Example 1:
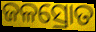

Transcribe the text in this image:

ଜଳସ୍ରୋତ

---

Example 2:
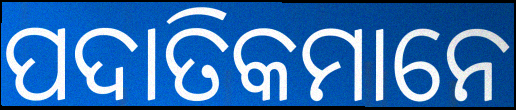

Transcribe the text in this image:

ପଦାତିକମାନେ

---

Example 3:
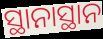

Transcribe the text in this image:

ସ୍ଥାନାସ୍ଥାନ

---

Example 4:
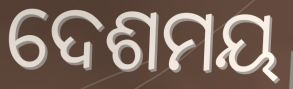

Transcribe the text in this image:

ଦେଶମୟ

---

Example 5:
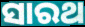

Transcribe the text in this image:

ସାରଥ